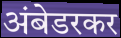
अंबेडरकर